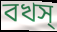
বখস্